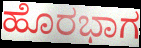
ಹೊರಭಾಗ